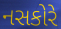
નસકોરે